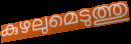
കുഴലുമെടുത്തു